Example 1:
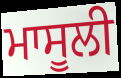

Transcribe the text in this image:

ਮਾਸੂਲੀ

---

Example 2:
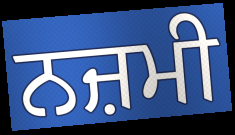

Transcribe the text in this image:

ਨਜ਼ਮੀ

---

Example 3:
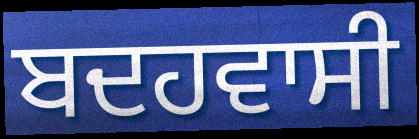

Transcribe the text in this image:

ਬਦਹਵਾਸੀ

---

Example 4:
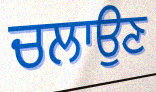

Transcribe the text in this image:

ਚਲਾਉਣ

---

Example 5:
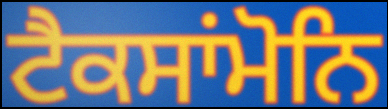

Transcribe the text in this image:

ਟੈਕਸਾਂਮੋਨਿ